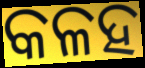
କଳହ